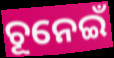
ଚୂନେଇଁ